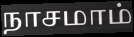
நாசமாம்